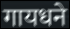
गायधने